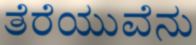
ತೆರೆಯುವೆನು